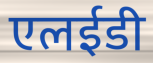
एलईडी